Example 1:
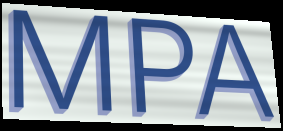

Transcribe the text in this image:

MPA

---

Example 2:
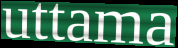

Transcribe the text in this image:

uttama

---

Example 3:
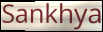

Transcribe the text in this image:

Sankhya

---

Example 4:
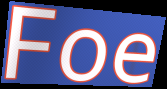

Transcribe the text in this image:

Foe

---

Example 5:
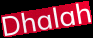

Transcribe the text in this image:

Dhalah